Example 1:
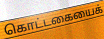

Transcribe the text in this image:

கொட்டகையைக்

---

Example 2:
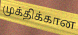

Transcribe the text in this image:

முக்திக்கான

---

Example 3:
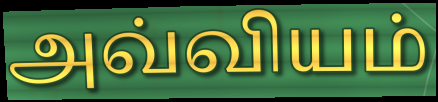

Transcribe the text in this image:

அவ்வியம்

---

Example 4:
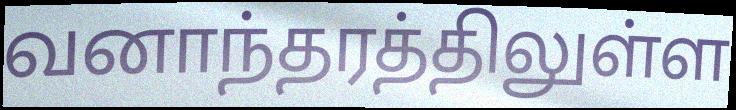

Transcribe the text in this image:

வனாந்தரத்திலுள்ள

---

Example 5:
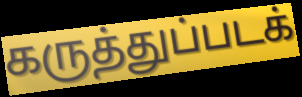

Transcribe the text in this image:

கருத்துப்படக்